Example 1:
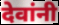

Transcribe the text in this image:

देवांनी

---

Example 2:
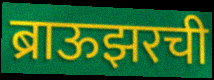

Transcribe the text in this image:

ब्राऊझरची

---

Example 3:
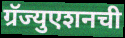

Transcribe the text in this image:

ग्रॅज्युएशनची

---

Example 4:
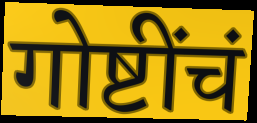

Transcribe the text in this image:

गोष्टींचं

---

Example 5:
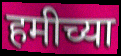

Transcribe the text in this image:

हमीच्या